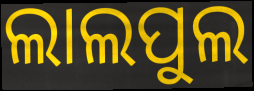
ଲାଲପୁଲ